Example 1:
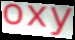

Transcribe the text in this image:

oxy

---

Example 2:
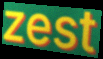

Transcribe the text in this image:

zest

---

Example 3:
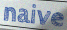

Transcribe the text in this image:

naive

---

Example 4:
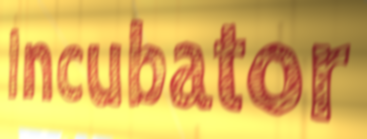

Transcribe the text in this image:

Incubator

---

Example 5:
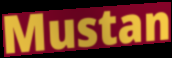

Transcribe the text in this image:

Mustan